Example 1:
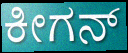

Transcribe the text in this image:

ಕೀಗನ್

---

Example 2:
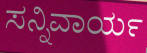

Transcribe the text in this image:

ಸನ್ನಿವಾರ್ಯ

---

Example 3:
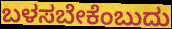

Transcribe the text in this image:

ಬಳಸಬೇಕೆಂಬುದು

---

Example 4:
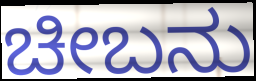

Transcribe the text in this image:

ಚೀಬನು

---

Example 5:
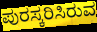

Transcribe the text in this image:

ಪುರಸ್ಕರಿಸಿರುವ